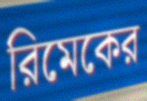
রিমেকের